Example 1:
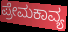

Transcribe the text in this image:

ಪ್ರೇಮಕಾವ್ಯ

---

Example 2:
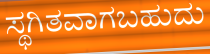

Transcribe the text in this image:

ಸ್ಥಗಿತವಾಗಬಹುದು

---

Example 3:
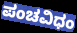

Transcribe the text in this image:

ಪಂಚವಿಧಂ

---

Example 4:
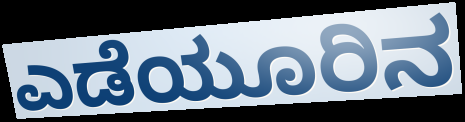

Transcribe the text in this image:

ಎಡೆಯೂರಿನ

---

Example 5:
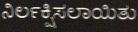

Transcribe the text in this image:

ನಿರ್ಲಕ್ಷಿಸಲಾಯಿತು